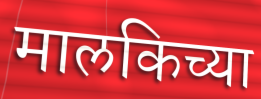
मालकिच्या